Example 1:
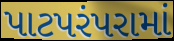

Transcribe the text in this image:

પાટપરંપરામાં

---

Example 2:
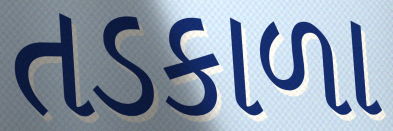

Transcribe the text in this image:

તડકાળા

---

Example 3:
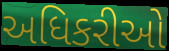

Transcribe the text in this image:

અધિકરીઓ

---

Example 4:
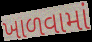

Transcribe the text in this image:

ખાળવામાં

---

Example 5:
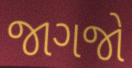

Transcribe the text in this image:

જાગજો